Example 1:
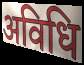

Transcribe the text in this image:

अविधि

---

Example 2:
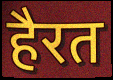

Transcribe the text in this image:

हैरत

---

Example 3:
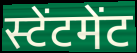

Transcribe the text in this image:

स्टेंटमेंट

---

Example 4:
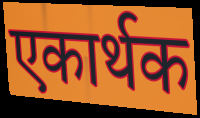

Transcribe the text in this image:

एकार्थक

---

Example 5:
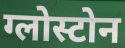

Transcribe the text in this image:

ग्लोस्टोन